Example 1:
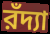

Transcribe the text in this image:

রঁদ্যা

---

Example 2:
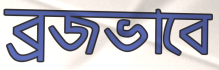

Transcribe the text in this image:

ব্রজভাবে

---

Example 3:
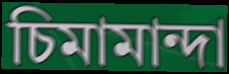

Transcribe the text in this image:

চিমামান্দা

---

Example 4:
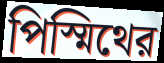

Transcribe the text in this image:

পিস্মিথের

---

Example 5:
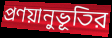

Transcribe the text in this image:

প্রণয়ানুভূতির